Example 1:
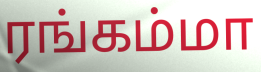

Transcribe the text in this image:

ரங்கம்மா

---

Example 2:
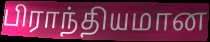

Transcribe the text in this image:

பிராந்தியமான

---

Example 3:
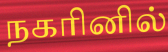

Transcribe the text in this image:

நகரினில்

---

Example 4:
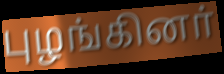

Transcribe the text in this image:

புழங்கினர்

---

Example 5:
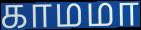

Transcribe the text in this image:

காமமா